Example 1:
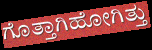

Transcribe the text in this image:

ಗೊತ್ತಾಗಿಹೋಗಿತ್ತು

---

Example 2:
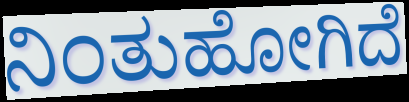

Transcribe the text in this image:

ನಿಂತುಹೋಗಿದೆ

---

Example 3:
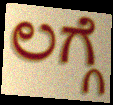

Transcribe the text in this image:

ಲಗ್ಗೆ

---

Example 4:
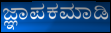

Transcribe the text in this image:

ಜ್ಞಾಪಕಮಾಡಿ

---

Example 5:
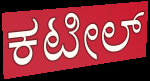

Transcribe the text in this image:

ಕಟೀಲ್